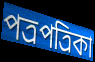
পত্রপত্রিকা